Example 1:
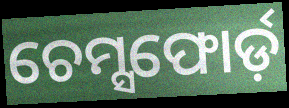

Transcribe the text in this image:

ଚେମ୍ସଫୋର୍ଡ଼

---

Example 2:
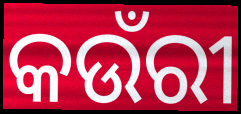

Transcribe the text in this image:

କଉଁରୀ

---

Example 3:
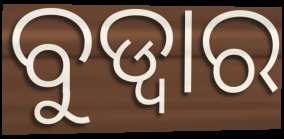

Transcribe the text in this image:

ବୁଡ୍ୱାର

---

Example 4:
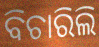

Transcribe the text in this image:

ବିଚାରିଲି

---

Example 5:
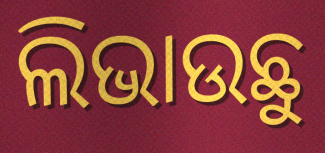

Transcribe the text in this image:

ଲିଭାଉଛୁ